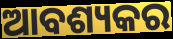
ଆବଶ୍ୟକର